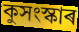
কুসংস্কাৰ